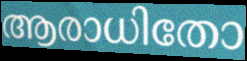
ആരാധിതോ